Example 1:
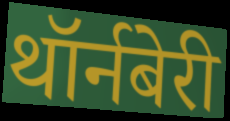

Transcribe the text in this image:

थॉर्नबेरी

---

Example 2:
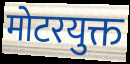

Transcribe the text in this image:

मोटरयुक्त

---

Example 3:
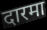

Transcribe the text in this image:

दारमा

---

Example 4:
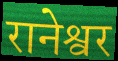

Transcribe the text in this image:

रानेश्वर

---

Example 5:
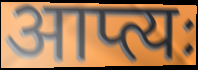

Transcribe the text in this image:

आप्त्यः